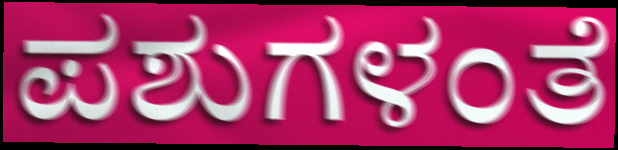
ಪಶುಗಳಂತೆ